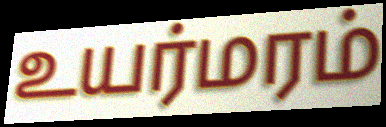
உயர்மரம்